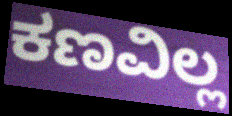
ಕಣವಿಲ್ಲ